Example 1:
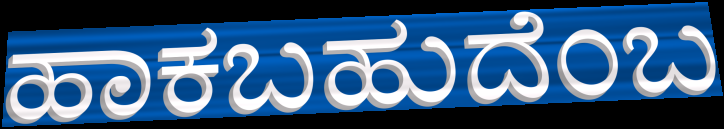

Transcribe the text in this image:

ಹಾಕಬಹುದೆಂಬ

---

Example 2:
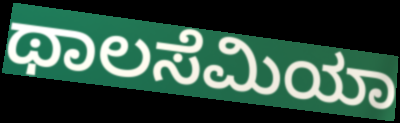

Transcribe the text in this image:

ಥಾಲಸೆಮಿಯಾ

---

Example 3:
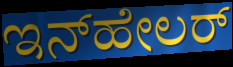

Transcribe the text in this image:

ಇನ್‌ಹೇಲರ್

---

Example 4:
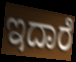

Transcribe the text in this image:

ಇದಾರೆ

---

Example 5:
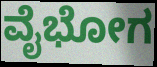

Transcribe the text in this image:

ವೈಭೋಗ